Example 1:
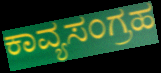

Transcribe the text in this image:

ಕಾವ್ಯಸಂಗ್ರಹ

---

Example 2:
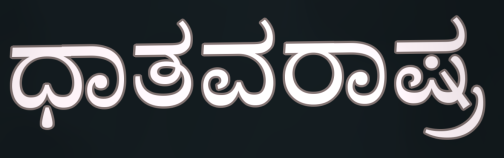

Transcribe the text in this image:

ಧಾತವರಾಷ್ರ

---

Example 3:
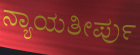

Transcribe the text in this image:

ನ್ಯಾಯತೀರ್ಪು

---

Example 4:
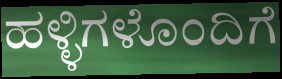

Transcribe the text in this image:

ಹಳ್ಳಿಗಳೊಂದಿಗೆ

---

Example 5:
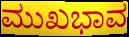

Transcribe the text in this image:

ಮುಖಭಾವ